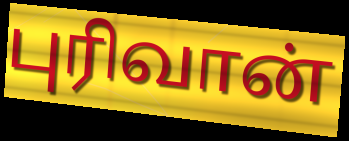
புரிவான்